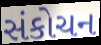
સંકોચન